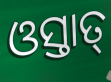
ଓସ୍ତାତ୍